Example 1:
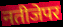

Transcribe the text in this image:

नतीजेपर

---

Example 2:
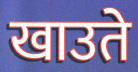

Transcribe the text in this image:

खाउते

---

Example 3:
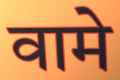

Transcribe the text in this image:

वामे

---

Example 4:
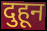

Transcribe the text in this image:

दुहून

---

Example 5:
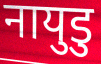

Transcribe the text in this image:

नायुडु